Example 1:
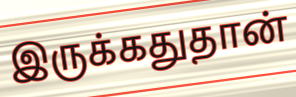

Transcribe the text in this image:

இருக்கதுதான்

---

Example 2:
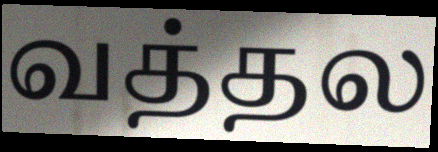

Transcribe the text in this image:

வத்தல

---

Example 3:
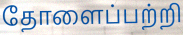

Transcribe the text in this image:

தோளைப்பற்றி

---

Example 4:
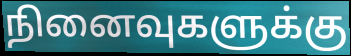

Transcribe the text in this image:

நினைவுகளுக்கு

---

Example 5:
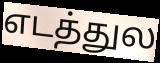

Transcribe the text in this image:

எடத்துல